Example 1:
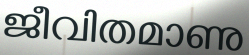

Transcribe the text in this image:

ജീവിതമാണു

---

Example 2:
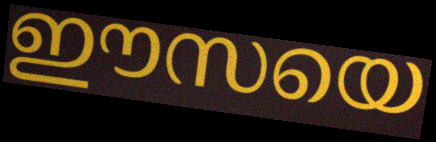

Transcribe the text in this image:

ഈസയെ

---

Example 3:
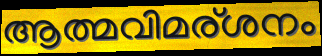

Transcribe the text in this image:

ആത്മവിമര്ശനം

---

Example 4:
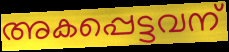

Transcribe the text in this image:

അകപ്പെട്ടവന്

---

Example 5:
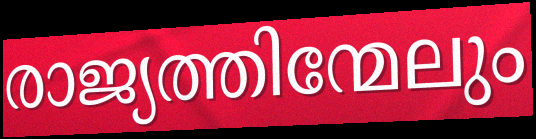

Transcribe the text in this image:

രാജ്യത്തിന്മേലും